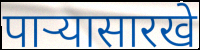
पाऱ्यासारखे